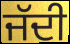
ਜੱਦੀ